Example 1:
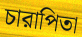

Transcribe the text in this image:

চারাপিতা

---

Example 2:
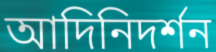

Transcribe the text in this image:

আদিনিদর্শন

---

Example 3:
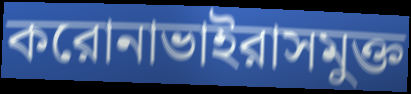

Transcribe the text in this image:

করোনাভাইরাসমুক্ত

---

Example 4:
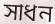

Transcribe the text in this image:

সাধন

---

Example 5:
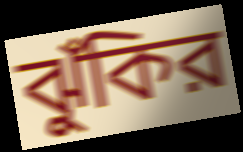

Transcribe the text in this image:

ঝুঁকির